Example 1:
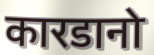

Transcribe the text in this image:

कारडानो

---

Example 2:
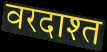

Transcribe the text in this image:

वरदाश्त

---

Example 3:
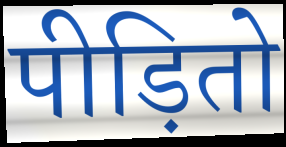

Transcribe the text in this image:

पीड़ितो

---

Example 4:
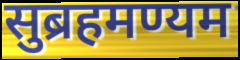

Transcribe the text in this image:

सुब्रहमण्यम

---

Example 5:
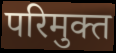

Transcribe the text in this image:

परिमुक्त